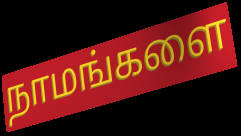
நாமங்களை